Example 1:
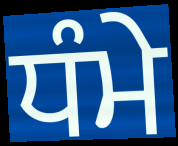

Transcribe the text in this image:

ਧੰਮੇ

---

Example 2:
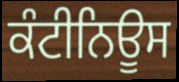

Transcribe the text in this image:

ਕੰਟੀਨਿਊਸ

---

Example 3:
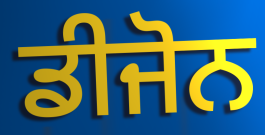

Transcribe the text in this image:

ਡੀਜੋਨ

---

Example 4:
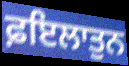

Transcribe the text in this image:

ਫ਼ਇਲਾਤੁਨ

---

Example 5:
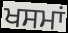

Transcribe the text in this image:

ਖਸਮਾਂ